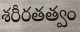
శరీరతత్వం